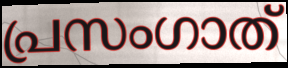
പ്രസംഗാത്